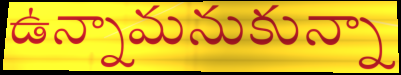
ఉన్నామనుకున్నా